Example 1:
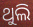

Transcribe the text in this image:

ଥୁଲି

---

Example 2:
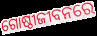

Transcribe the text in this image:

ଗୋଷ୍ଠୀଜୀବନରେ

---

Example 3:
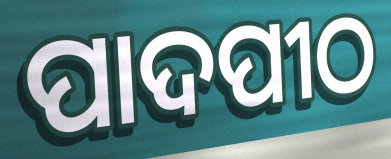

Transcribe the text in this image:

ପାଦପୀଠ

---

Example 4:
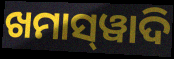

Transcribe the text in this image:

ଖମାସ୍‌ୱାଦି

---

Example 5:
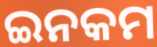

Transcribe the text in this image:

ଇନକମ